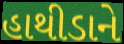
હાથીડાને